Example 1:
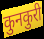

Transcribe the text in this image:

कुनकुरी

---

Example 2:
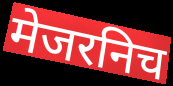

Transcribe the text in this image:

मेजरनिच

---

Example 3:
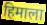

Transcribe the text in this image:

हिमाला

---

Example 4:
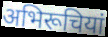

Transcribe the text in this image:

अभिरूचियां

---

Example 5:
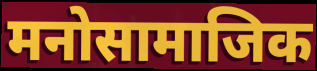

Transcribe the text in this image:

मनोसामाजिक